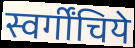
स्वर्गींचिये